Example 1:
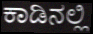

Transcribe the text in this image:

ಕಾಡಿನಲ್ಲಿ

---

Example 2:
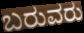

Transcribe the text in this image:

ಬರುವರು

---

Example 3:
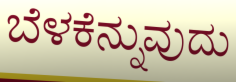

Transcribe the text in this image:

ಬೆಳಕೆನ್ನುವುದು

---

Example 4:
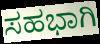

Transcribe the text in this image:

ಸಹಭಾಗಿ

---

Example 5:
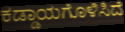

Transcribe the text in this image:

ಕಡ್ಡಾಯಗೊಳಿಸಿದೆ